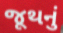
જૂથનું